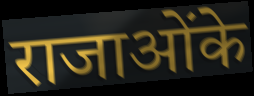
राजाओंके